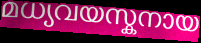
മധ്യവയസ്കനായ